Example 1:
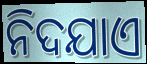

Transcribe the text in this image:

ନିଦଯାଏ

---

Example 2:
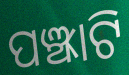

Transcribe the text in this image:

ପଞ୍ଝାଟି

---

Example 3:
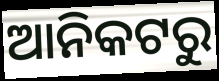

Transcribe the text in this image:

ଆନିକଟରୁ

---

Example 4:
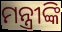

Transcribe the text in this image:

ମନ୍ତ୍ରୀଙ୍କି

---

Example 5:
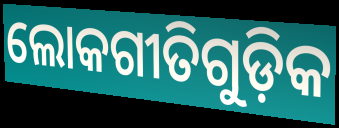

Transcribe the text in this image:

ଲୋକଗୀତିଗୁଡ଼ିକ